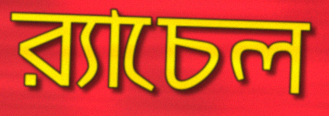
র‍্যাচেল